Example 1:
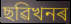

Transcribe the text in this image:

ছৱিখনৰ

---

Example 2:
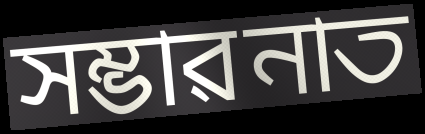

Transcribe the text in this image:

সম্ভাৱনাত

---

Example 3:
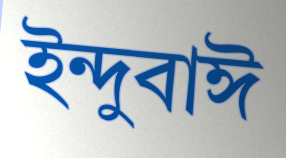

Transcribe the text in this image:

ইন্দুবাঈ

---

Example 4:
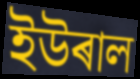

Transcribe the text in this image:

ইউৰাল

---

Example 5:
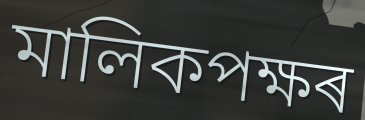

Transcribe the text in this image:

মালিকপক্ষৰ